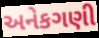
અનેકગણી